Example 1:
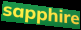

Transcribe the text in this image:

sapphire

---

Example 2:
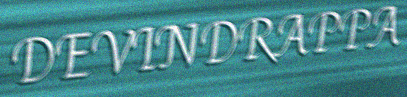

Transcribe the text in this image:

DEVINDRAPPA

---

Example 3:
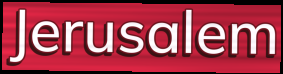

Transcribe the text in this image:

Jerusalem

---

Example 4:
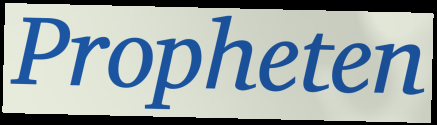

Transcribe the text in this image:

Propheten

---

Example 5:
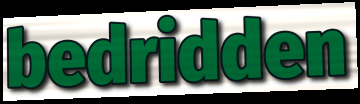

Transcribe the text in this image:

bedridden